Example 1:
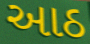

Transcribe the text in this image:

આઠ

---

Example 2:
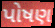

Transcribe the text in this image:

પોષણ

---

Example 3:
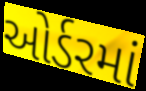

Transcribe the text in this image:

ઓર્ડરમાં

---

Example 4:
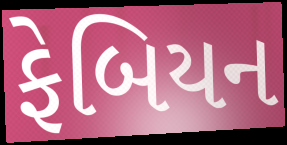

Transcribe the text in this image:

ફેબિયન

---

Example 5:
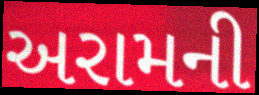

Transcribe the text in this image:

અરામની